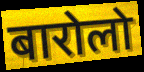
बारोलो